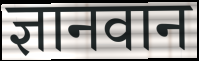
ज्ञानवान